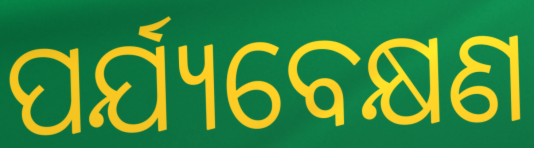
ପର୍ଯ୍ୟବେକ୍ଷଣ